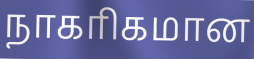
நாகரிகமான